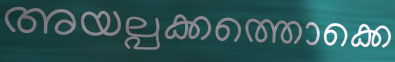
അയല്പക്കത്തൊക്കെ